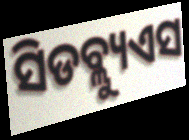
ସିଡବ୍ଲ୍ୟୁଏସ